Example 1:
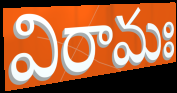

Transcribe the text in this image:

విరామః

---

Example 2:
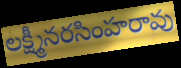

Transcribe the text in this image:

లక్ష్మీనరసింహరావు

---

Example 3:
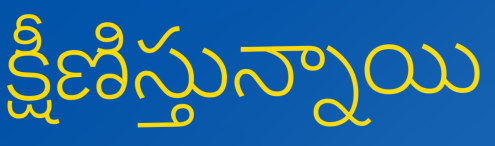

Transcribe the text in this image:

క్షీణిస్తున్నాయి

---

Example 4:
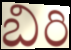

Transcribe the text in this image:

బిరి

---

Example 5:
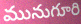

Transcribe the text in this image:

మునుగూరి